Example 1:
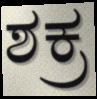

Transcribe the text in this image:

ಶಕ್ರ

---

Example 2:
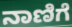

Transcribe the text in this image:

ನಾಣಿಗೆ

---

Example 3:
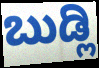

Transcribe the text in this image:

ಬುಡ್ಲಿ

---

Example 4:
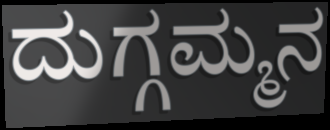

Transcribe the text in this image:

ದುಗ್ಗಮ್ಮನ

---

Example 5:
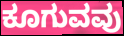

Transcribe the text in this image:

ಕೂಗುವವು